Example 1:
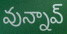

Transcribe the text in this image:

వున్నావ్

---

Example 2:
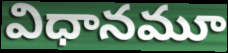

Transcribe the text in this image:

విధానమూ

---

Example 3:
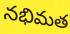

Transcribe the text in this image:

నభిమత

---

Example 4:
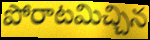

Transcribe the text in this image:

పోరాటమిచ్చిన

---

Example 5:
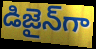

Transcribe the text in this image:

డిజైన్‌గా